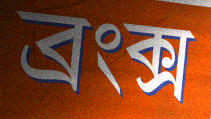
ব্রংক্স